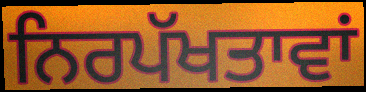
ਨਿਰਪੱਖਤਾਵਾਂ